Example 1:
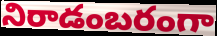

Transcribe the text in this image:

నిరాడంబరంగా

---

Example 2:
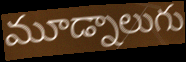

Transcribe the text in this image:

మూడ్నాలుగు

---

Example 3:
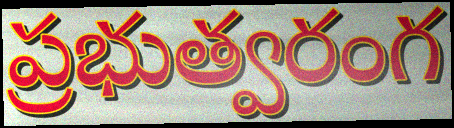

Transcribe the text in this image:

ప్రభుత్వరంగ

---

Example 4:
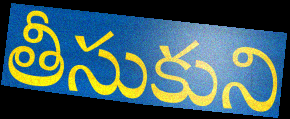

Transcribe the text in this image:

తీసుకుని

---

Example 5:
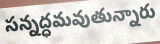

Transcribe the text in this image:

సన్నద్ధమవుతున్నారు